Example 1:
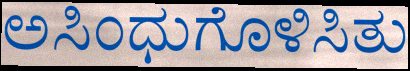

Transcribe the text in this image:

ಅಸಿಂಧುಗೊಳಿಸಿತು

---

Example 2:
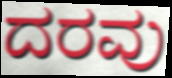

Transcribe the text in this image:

ದರವು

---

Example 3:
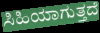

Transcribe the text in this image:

ಸಿಹಿಯಾಗುತ್ತದೆ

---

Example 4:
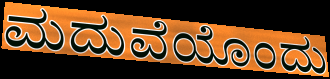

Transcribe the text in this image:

ಮದುವೆಯೊಂದು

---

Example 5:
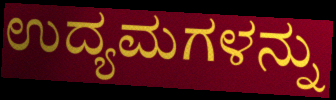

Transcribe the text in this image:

ಉದ್ಯಮಗಳನ್ನು